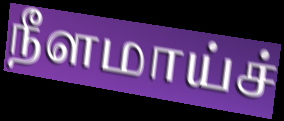
நீளமாய்ச்